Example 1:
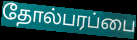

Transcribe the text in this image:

தோல்பரப்பை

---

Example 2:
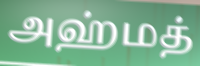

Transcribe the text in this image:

அஹ்மத்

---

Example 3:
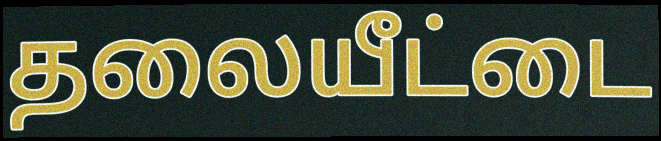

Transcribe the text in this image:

தலையீட்டை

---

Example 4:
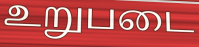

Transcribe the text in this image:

உறுபடை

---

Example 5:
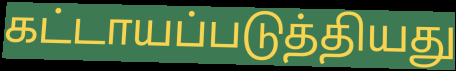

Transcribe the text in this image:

கட்டாயப்படுத்தியது